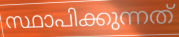
സ്ഥാപിക്കുന്നത്